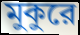
মুকুরে